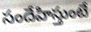
సందేహిస్తుంటే